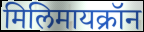
मिलिमायक्रॉन